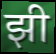
झी